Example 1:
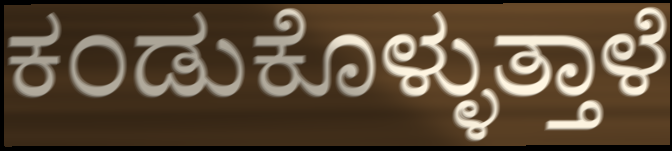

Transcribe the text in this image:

ಕಂಡುಕೊಳ್ಳುತ್ತಾಳೆ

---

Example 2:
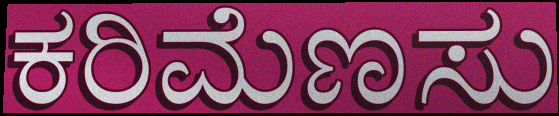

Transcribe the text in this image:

ಕರಿಮೆಣಸು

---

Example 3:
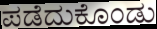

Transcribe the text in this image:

ಪಡೆದುಕೊಂಡು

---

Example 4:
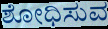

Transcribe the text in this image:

ಶೋಧಿಸುವ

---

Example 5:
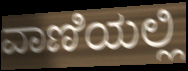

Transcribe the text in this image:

ವಾಣಿಯಲ್ಲಿ